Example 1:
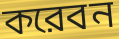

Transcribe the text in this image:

করেবন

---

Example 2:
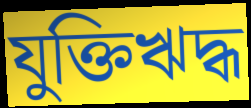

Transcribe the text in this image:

যুক্তিঋদ্ধ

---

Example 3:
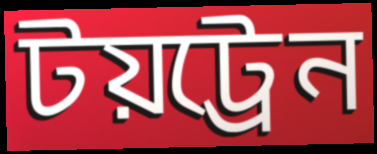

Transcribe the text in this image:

টয়ট্রেন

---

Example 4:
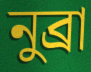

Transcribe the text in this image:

নুব্রা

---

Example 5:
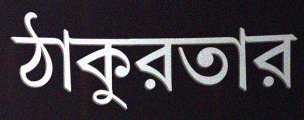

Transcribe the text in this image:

ঠাকুরতার